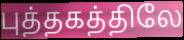
புத்தகத்திலே